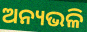
ଅନ୍ୟଭଳି